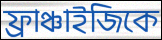
ফ্রাঞ্চাইজিকে